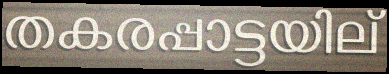
തകരപ്പാട്ടയില്